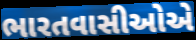
ભારતવાસીઓએ